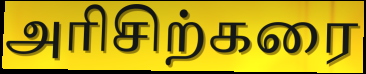
அரிசிற்கரை